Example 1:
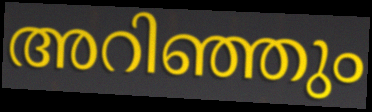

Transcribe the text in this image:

അറിഞ്ഞും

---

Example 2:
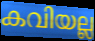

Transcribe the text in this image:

കവിയല്ല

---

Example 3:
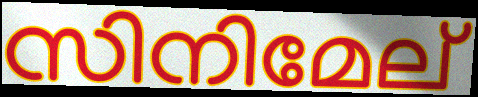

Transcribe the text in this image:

സിനിമേല്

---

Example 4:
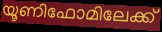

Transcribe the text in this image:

യൂണിഫോമിലേക്ക്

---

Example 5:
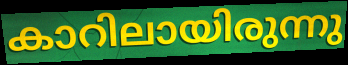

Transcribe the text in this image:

കാറിലായിരുന്നു